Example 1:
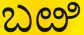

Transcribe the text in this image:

ಬೞಿ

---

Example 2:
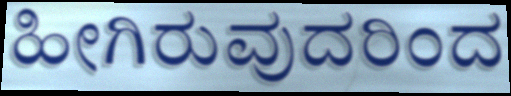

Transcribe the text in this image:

ಹೀಗಿರುವುದರಿಂದ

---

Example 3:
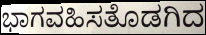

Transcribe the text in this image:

ಭಾಗವಹಿಸತೊಡಗಿದ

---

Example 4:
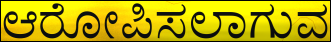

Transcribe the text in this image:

ಆರೋಪಿಸಲಾಗುವ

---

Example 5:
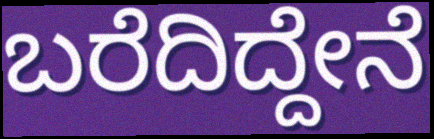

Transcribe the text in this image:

ಬರೆದಿದ್ದೇನೆ